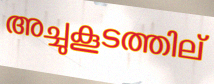
അച്ചുകൂടത്തില്